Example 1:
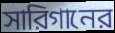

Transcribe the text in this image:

সারিগানের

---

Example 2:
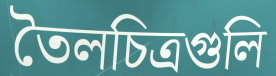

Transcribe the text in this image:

তৈলচিত্রগুলি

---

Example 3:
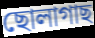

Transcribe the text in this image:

ছোলাগাছ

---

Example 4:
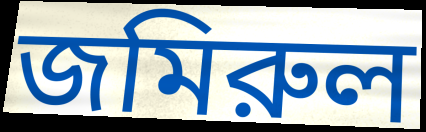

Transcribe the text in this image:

জমিরুল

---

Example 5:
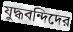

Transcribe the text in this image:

যুদ্ধবন্দিদের